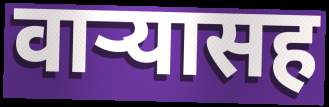
वार्‍यासह